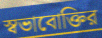
স্বভাবোক্তির